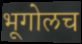
भूगोलच